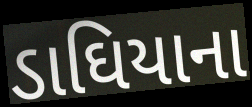
ડાઘિયાના